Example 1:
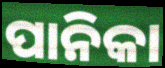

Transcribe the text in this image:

ପାନିକା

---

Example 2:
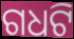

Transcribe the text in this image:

ଗଧଟି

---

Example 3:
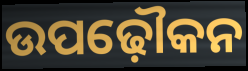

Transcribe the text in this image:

ଉପଢ଼ୌକନ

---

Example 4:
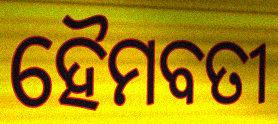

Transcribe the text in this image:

ହୈମବତୀ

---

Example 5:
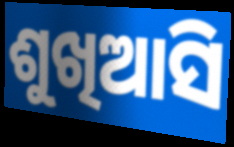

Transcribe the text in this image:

ଶୁଖିଆସି